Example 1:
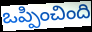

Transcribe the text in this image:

ఒప్పించింది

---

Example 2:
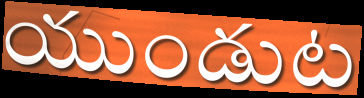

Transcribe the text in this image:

యుండుట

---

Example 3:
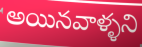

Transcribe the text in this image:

అయినవాళ్ళని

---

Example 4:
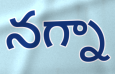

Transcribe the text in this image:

నగ్నా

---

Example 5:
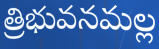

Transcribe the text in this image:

త్రిభువనమల్ల